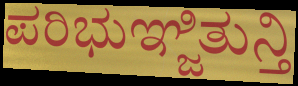
ಪರಿಭುಞ್ಜಿತುನ್ತಿ